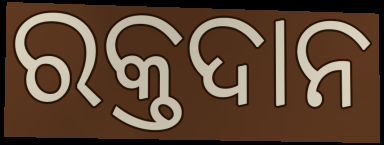
ରକ୍ତଦାନ